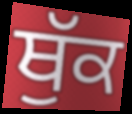
ਥੁੱਕ